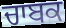
ਚਾਬਕ